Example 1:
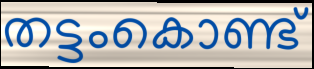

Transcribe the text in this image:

തട്ടംകൊണ്ട്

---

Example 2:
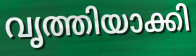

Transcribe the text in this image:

വൃത്തിയാക്കി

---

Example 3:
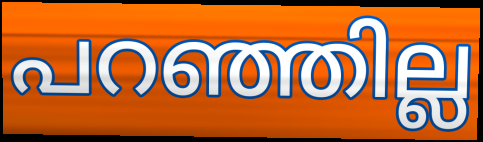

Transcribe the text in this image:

പറഞ്ഞില്ല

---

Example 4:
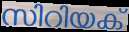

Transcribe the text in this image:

സിറിയക്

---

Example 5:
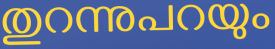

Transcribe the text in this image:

തുറന്നുപറയും